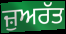
ਜ਼ੁਅਰੱਤ